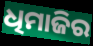
ଧିମାଜିର